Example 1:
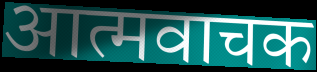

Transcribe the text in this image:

आत्मवाचक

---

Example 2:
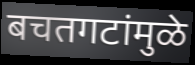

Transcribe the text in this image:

बचतगटांमुळे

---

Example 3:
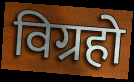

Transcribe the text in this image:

विग्रहो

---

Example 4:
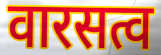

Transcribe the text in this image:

वारसत्व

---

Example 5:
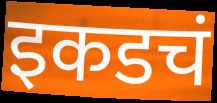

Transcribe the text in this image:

इकडचं